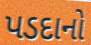
પડદાનો